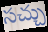
సచ్చు